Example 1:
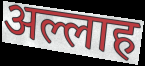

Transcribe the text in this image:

अल्लाह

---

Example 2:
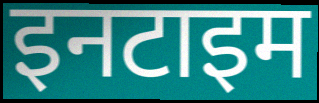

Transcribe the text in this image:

इनटाइम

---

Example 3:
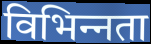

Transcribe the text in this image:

विभिन्‍नता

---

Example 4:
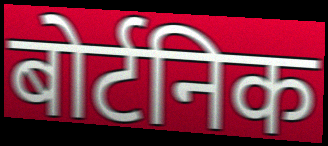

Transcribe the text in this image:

बोर्टनिक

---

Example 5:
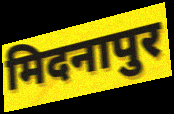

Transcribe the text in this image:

मिदनापुर